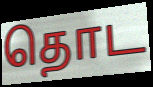
தொட